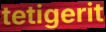
tetigerit